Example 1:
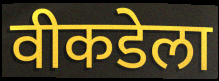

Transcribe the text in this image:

वीकडेला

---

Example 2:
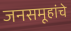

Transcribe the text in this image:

जनसमूहांचे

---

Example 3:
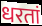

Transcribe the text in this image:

धरतां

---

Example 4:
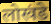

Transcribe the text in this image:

लोखंडे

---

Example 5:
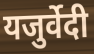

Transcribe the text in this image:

यजुर्वेदी